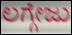
ಲಗ್ಗೇಜು